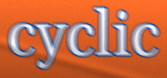
cyclic